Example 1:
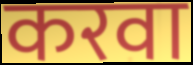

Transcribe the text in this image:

करवा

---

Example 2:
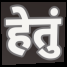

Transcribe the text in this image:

हेतुं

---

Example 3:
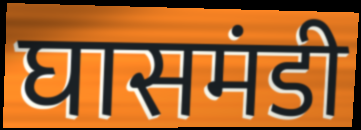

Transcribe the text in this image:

घासमंडी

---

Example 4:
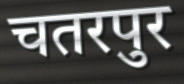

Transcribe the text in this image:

चतरपुर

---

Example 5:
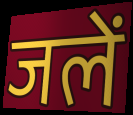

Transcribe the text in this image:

जलें